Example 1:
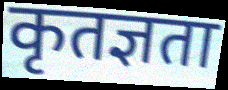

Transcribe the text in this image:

कृतज्ञता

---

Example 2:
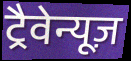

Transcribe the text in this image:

ट्रैवेन्यूज़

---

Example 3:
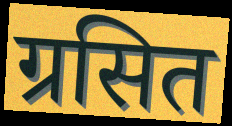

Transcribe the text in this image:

ग्रसित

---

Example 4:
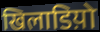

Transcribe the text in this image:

खिलाडिय़ो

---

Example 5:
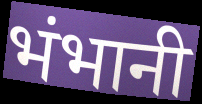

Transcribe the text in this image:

भंभानी